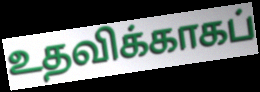
உதவிக்காகப்